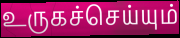
உருகச்செய்யும்